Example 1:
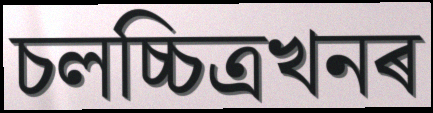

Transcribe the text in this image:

চলচ্চিত্ৰখনৰ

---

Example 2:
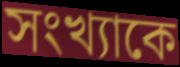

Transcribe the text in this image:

সংখ্যাকে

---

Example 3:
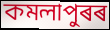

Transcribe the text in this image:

কমলাপুৰৰ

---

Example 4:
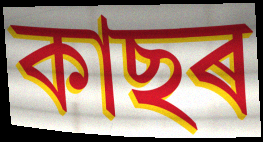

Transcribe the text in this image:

কাছৰ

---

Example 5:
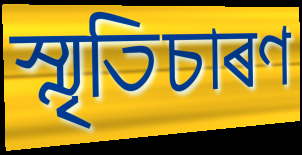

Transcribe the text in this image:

স্মৃতিচাৰণ